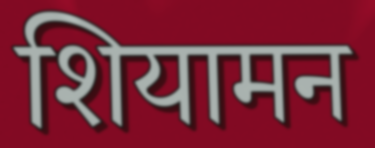
शियामन